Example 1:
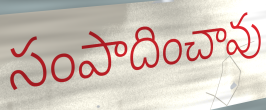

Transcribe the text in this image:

సంపాదించావు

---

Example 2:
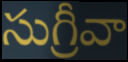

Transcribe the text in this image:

సుగ్రీవా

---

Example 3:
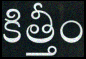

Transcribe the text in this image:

కిత్తీం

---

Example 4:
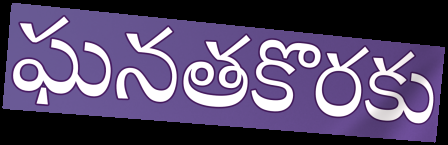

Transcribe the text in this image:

ఘనతకొరకు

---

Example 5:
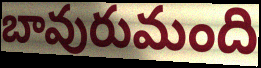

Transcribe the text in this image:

బావురుమంది